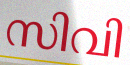
സിവി